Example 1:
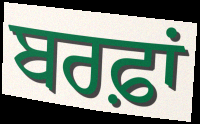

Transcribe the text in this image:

ਬਰਫ਼ਾਂ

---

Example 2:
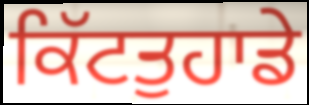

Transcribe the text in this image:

ਕਿੱਟਤੁਹਾਡੇ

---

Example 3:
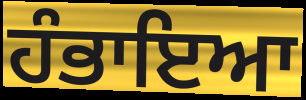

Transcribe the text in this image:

ਹੰਭਾਇਆ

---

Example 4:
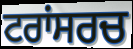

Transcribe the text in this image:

ਟਰਾਂਸਰਚ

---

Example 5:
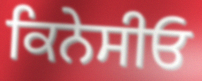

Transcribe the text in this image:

ਕਿਨੇਸੀਓ